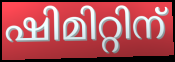
ഷിമിറ്റിന്